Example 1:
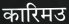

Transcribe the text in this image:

कारिमउ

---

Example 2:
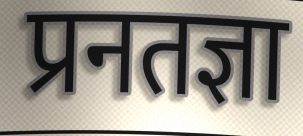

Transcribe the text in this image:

प्रनतज्ञा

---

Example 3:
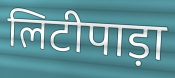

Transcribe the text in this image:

लिटीपाड़ा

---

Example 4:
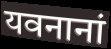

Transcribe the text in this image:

यवनानां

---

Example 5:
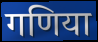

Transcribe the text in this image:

गणिया